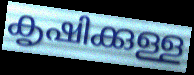
കൃഷിക്കുള്ള